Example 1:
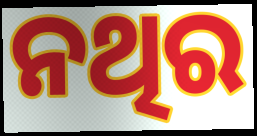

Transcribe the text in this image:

ନଥିର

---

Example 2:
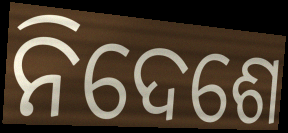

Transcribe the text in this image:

ନିଦେଶେ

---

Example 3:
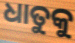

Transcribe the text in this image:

ଧାତୁକୁ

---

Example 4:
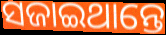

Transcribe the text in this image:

ସଜାଇଥାନ୍ତେ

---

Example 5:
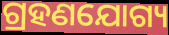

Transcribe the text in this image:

ଗ୍ରହଣଯୋଗ୍ୟ